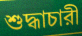
শুদ্ধাচারী